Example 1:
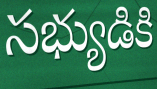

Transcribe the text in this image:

సభ్యుడికి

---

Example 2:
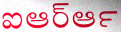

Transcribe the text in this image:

ఐఆర్ఆర్‍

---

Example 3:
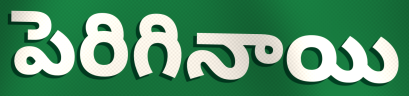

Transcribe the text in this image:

పెరిగినాయి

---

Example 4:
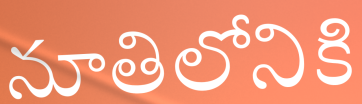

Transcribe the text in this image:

నూతిలోనికి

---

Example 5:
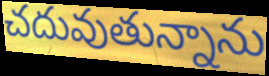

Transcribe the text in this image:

చదువుతున్నాను